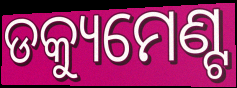
ଡକ୍ୟୁମେଣ୍ଟ